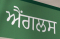
ਐਂਗਲਸ